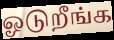
ஓடுறீங்க